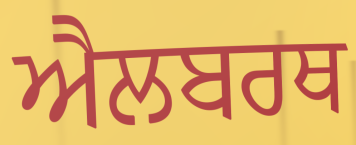
ਐਲਬਰਥ